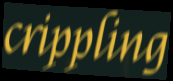
crippling